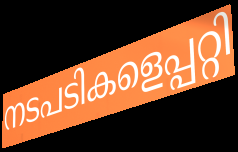
നടപടികളെപ്പറ്റി